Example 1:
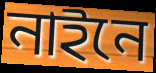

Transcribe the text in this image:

নাইনে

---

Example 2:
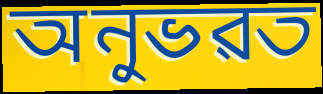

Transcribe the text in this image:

অনুভৱত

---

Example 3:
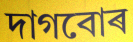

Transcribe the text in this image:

দাগবোৰ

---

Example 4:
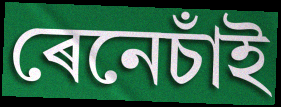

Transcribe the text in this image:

ৰেনেচাঁই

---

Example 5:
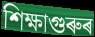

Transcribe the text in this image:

শিক্ষাগুৰুৰ